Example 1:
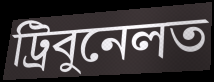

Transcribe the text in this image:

ট্ৰিবুনেলত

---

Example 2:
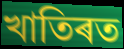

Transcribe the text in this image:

খাতিৰত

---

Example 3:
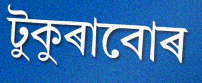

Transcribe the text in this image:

টুকুৰাবোৰ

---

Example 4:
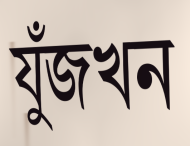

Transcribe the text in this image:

যুঁজখন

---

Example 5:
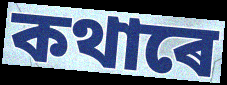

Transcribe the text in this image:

কথাৰে